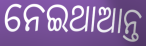
ନେଇଥାଆନ୍ତ